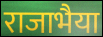
राजाभैया